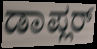
ಡಾಪ್ಲರ್